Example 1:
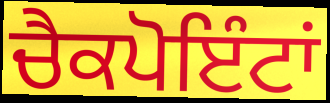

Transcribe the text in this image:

ਚੈਕਪੋਇੰਟਾਂ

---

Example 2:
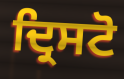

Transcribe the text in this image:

ਦ੍ਰਿਸਟੋ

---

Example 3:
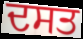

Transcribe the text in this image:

ਦਸਤ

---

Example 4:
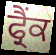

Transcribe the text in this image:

ਫ੍ਰੈਂਕ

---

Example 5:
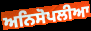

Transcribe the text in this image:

ਅਨਿਸੋਪਲੀਆ